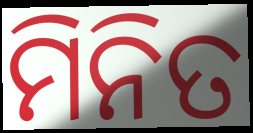
ମିନିତ